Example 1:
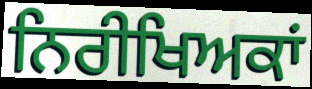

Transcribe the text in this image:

ਨਿਰੀਖਿਅਕਾਂ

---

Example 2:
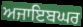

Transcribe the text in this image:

ਅਜਾਇਬਘਰ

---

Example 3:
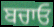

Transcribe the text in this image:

ਬਚਾਓ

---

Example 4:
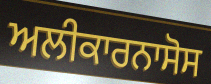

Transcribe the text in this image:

ਅਲੀਕਾਰਨਾਸੋਸ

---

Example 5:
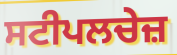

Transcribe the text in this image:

ਸਟੀਪਲਚੇਜ਼